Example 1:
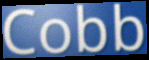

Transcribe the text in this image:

Cobb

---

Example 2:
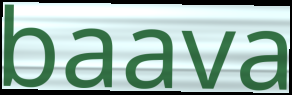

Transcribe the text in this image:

baava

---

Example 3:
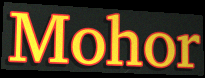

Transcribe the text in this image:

Mohor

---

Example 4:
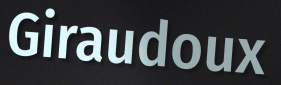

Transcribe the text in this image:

Giraudoux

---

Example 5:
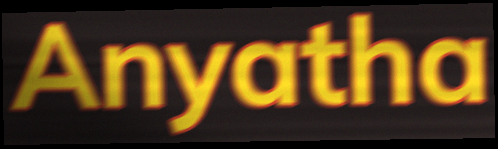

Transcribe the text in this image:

Anyatha